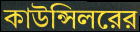
কাউন্সিলরের